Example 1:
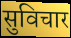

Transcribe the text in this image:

सुविचार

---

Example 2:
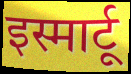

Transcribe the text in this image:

इस्मार्टू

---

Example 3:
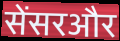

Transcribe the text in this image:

सेंसरऔर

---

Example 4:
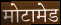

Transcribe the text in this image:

मोटामेड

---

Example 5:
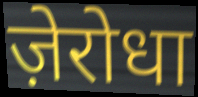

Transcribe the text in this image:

ज़ेरोधा